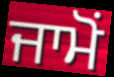
ਜਾਮੋਂ